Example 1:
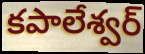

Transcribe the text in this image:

కపాలేశ్వర్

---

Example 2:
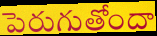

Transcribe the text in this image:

పెరుగుతోందా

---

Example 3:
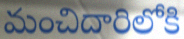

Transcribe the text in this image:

మంచిదారిలోకి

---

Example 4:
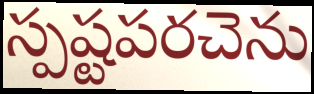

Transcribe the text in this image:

స్పష్టపరచెను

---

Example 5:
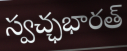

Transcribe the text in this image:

స్వచ్ఛభారత్